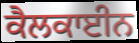
ਕੈਲਕਾਈਨ